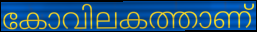
കോവിലകത്താണ്